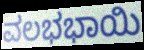
ವಲಭಭಾಯಿ